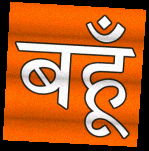
बहूँ